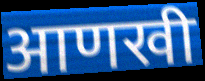
आणखी